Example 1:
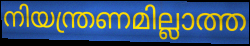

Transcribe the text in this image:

നിയന്ത്രണമില്ലാത്ത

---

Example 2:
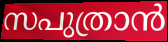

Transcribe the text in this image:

സപുത്രാൻ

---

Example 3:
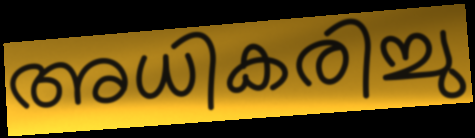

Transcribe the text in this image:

അധികരിച്ചു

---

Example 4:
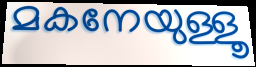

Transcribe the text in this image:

മകനേയുള്ളൂ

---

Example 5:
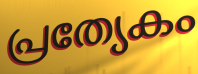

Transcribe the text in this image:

പ്രത്യേകം